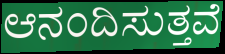
ಆನಂದಿಸುತ್ತವೆ